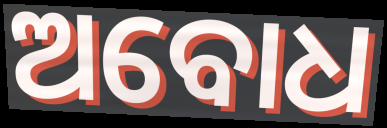
ଅବୋଧ